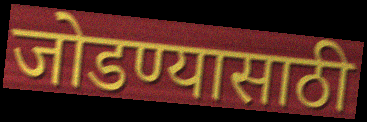
जोडण्यासाठी